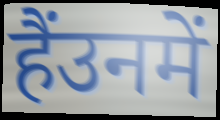
हैंउनमें